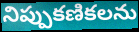
నిప్పుకణికలను